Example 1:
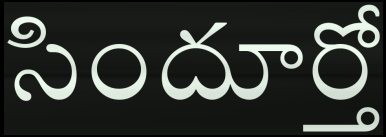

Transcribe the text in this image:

సిందూర్తో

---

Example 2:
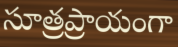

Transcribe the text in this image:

సూత్రప్రాయంగా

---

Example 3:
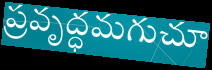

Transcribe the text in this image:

ప్రవృద్ధమగుచూ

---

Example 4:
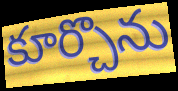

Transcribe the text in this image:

కూర్చొను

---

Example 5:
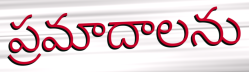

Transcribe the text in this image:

ప్రమాదాలను